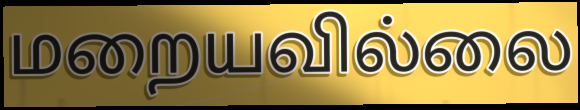
மறையவில்லை